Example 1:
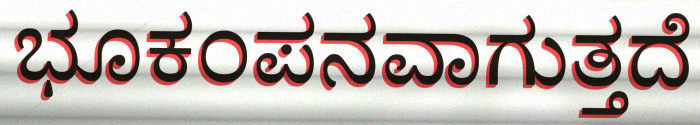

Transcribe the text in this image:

ಭೂಕಂಪನವಾಗುತ್ತದೆ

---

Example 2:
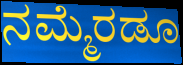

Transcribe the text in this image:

ನಮ್ಮೆರಡೂ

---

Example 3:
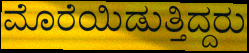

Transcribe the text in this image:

ಮೊರೆಯಿಡುತ್ತಿದ್ದರು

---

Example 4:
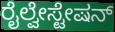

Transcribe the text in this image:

ರೈಲ್ವೇಸ್ಟೇಷನ್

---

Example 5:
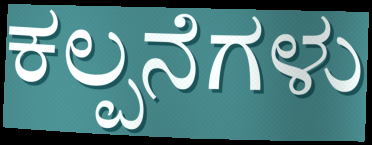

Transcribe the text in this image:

ಕಲ್ಪನೆಗಳು